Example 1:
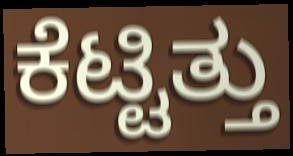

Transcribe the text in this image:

ಕೆಟ್ಟಿತ್ತು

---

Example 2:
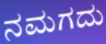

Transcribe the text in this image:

ನಮಗದು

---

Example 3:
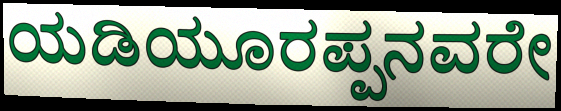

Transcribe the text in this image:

ಯಡಿಯೂರಪ್ಪನವರೇ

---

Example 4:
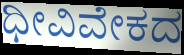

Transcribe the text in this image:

ಧೀವಿವೇಕದ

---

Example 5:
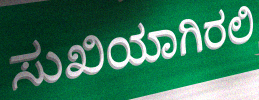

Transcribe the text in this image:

ಸುಖಿಯಾಗಿರಲಿ